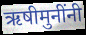
ऋषीमुनींनी